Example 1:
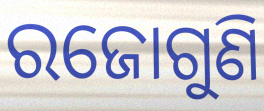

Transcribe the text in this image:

ରଜୋଗୁଣି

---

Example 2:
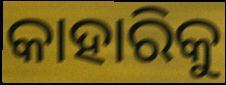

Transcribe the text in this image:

କାହାରିକୁ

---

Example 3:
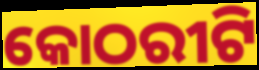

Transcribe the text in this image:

କୋଠରୀଟି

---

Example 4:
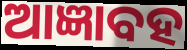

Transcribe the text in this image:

ଆଜ୍ଞାବହ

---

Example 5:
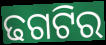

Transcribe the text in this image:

ଢଗଟିର